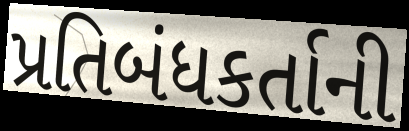
પ્રતિબંધકર્તાની